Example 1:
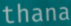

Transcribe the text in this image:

thana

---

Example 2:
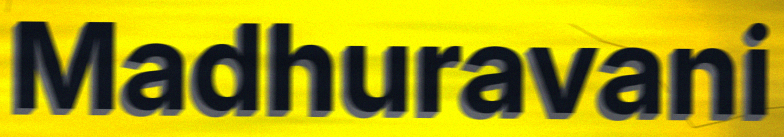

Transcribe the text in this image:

Madhuravani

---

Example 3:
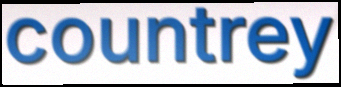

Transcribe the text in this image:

countrey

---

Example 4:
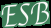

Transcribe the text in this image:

ESB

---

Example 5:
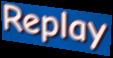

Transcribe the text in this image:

Replay